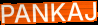
PANKAJ